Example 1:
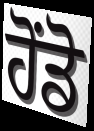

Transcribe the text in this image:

ਹੋਂਡੋ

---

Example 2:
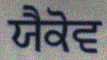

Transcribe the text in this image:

ਯੈਕੋਵ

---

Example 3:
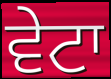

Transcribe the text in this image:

ਵੇਟਾ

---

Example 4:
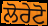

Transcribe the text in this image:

ਲੋਰੇਟੋ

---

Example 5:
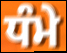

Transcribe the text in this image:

ਧੰਮੇ